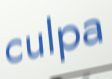
culpa